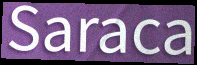
Saraca